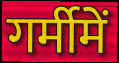
गर्मीमें